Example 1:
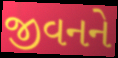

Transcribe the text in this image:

જીવનને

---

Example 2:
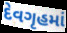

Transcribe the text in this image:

દેવગૃહમાં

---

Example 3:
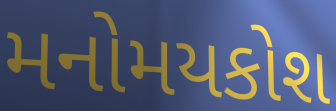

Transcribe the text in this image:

મનોમયકોશ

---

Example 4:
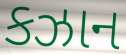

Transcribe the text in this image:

કઝાન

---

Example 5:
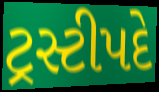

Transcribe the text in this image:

ટ્રસ્ટીપદે